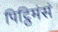
पिट्ठिमंसं